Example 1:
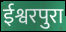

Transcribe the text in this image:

ईश्वरपुरा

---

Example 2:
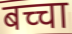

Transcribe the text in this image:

बच्‍चा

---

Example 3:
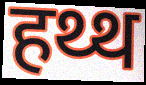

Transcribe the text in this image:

हथ्थ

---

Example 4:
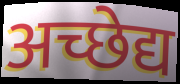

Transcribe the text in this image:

अच्छेद्य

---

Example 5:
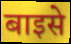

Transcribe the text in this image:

बाइसे